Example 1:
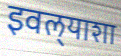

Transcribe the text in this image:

इवल्याशा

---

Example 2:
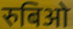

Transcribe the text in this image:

रुबिओ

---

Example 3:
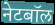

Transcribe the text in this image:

नेटबॉल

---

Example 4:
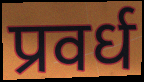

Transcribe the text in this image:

प्रवर्ध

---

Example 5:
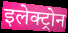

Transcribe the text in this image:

इलेक्ट्रोन